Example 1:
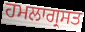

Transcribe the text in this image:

ਹਮਲਾਗ੍ਰਸਤ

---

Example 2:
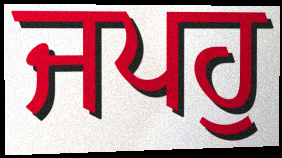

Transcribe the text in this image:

ਜਪਹੁ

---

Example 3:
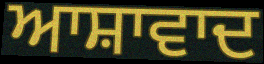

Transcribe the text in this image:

ਆਸ਼ਾਵਾਦ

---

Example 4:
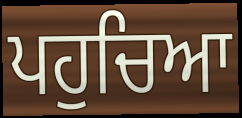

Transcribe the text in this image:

ਪਹੁਚਿਆ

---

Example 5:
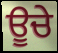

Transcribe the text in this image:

ਊਚੇ